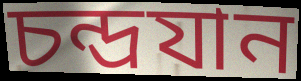
চন্দ্ৰযান